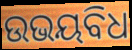
ଉଭୟବିଧ